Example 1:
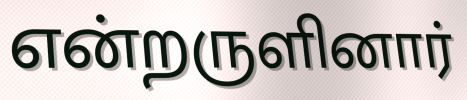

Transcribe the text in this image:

என்றருளினார்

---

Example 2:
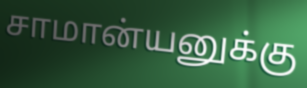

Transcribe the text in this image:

சாமான்யனுக்கு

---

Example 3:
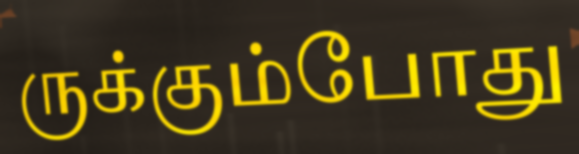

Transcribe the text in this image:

ருக்கும்போது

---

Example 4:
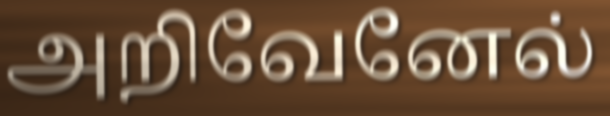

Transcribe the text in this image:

அறிவேனேல்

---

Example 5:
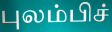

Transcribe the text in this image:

புலம்பிச்